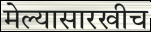
मेल्यासारखीच